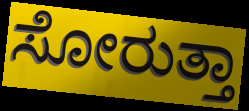
ಸೋರುತ್ತಾ